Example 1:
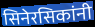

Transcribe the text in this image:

सिनेरसिकांनी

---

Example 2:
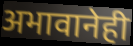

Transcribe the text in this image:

अभावानेही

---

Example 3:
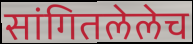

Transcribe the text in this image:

सांगितलेलेच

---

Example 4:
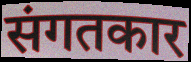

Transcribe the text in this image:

संगतकार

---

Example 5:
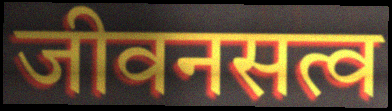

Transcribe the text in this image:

जीवनसत्व